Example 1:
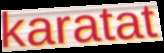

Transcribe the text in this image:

karatat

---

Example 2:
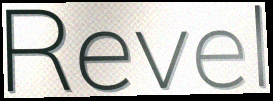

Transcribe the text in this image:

Revel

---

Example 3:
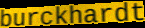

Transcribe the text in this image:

burckhardt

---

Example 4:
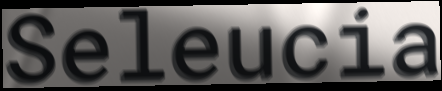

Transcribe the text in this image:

Seleucia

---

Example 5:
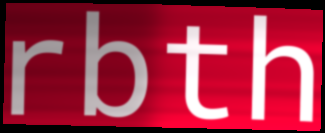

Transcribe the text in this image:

rbth